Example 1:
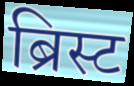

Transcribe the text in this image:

ब्रिस्ट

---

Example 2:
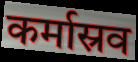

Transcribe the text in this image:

कर्मास्रव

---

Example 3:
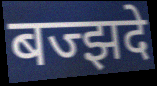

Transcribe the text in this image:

बज्झदे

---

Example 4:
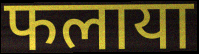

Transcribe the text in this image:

फलाया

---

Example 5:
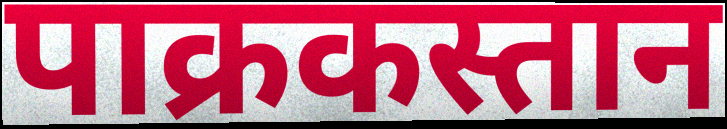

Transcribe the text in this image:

पाक्रकस्तान